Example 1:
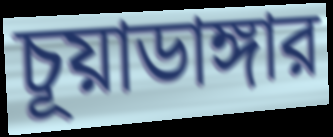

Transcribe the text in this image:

চূয়াডাঙ্গার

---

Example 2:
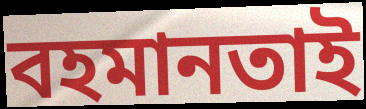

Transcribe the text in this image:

বহমানতাই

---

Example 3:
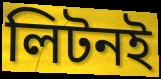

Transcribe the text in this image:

লিটনই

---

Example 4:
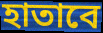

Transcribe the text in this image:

হাতাবে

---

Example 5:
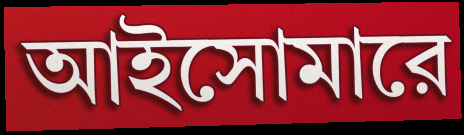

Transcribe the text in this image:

আইসোমারে